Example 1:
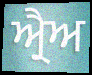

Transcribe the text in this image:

ਅ੍ਰੈਅ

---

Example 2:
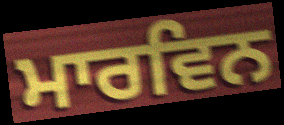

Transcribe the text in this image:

ਮਾਰਵਿਨ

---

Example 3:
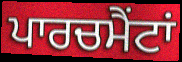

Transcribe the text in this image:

ਪਾਰਚਮੈਂਟਾਂ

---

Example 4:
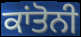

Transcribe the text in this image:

ਕਾਂਤੋਨੀ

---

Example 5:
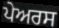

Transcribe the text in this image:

ਪੇਅਰਸ